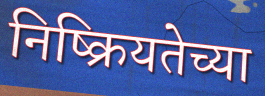
निष्क्रियतेच्या